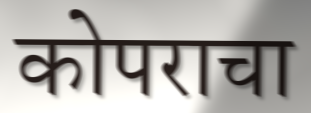
कोपराचा